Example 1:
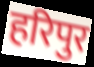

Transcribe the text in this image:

हरिपुर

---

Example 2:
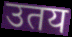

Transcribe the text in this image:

उतय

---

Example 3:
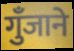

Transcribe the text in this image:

गुँजाने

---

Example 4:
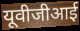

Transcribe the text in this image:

यूवीजीआई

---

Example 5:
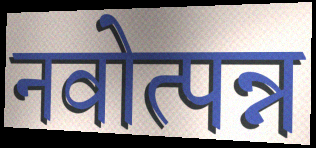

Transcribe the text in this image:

नवोत्पन्न